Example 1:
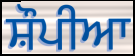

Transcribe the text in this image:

ਸ਼ੌਪੀਆ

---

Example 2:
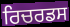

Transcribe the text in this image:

ਰਿਚਰਡਸ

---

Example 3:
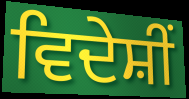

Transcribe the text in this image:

ਵਿਦੇਸ਼ੀਂ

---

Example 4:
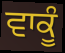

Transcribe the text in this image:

ਵਾਕੂੰ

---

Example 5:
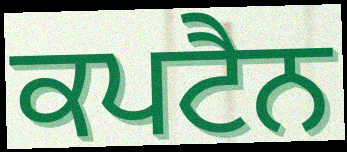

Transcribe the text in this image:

ਕਪਟੈਨ